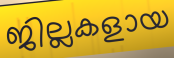
ജില്ലകളായ